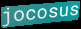
jocosus